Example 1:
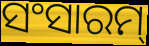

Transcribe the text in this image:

ସଂସାରମ୍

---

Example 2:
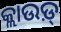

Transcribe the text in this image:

କ୍ଲାଉଡ଼୍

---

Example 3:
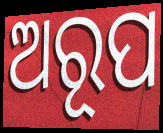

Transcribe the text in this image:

ଅରୂପ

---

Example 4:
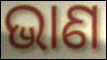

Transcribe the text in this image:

ଭାଣ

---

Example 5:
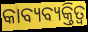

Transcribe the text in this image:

କାବ୍ୟବ୍ୟକ୍ତିତ୍ୱ